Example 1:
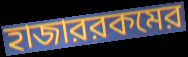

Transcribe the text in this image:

হাজাররকমের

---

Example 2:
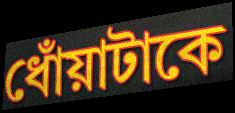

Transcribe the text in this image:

ধোঁয়াটাকে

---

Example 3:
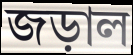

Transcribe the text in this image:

জড়াল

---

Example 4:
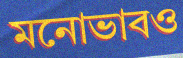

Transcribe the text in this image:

মনোভাবও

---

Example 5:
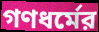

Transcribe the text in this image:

গণধর্মের